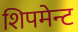
शिपमेन्ट